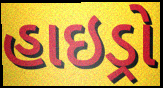
હાઇડ્રો